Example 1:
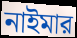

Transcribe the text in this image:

নাইমার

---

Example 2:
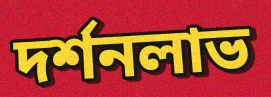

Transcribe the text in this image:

দর্শনলাভ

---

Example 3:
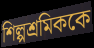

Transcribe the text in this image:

শিল্পশ্রমিককে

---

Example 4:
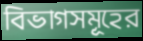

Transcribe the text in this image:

বিভাগসমূহের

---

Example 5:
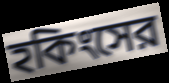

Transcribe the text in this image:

হকিংসের